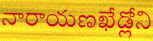
నారాయణఖేడ్లోని